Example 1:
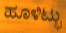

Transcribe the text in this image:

ಹೂಳಿಟ್ಟು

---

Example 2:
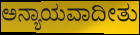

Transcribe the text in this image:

ಅನ್ಯಾಯವಾದೀತು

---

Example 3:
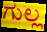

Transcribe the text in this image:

ಗುಲ್ಲ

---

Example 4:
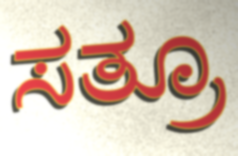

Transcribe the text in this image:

ಸತ್ರೂ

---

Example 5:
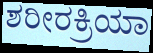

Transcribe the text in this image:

ಶರೀರಕ್ರಿಯಾ